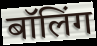
बॉलिंग